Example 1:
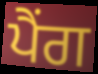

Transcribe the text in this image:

ਪੈਂਗ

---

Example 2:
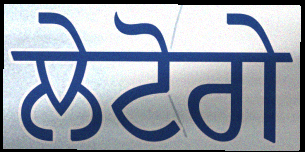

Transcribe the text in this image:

ਲੇਟੋਗੇ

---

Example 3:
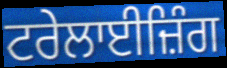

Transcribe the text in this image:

ਟਰੇਲਾਈਜ਼ਿੰਗ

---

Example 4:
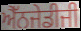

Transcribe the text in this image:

ਐੱਨਜੇਡੀਜੀ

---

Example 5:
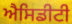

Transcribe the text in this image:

ਐਸਿਡੀਟੀ